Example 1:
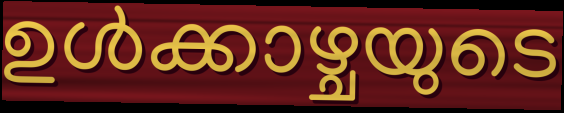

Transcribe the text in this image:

ഉൾക്കാഴ്ചയുടെ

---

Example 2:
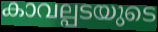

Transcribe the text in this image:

കാവല്പടയുടെ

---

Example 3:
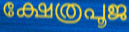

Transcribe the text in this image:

ക്ഷേത്രപൂജ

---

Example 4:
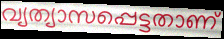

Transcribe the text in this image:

വ്യത്യാസപ്പെട്ടതാണ്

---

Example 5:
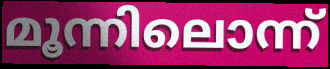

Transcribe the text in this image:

മൂന്നിലൊന്ന്